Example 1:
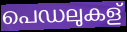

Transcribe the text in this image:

പെഡലുകള്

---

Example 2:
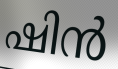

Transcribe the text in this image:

ഷിൻ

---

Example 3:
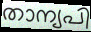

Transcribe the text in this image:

താന്യപി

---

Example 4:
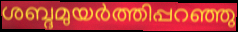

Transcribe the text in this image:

ശബ്ദമുയർത്തിപ്പറഞ്ഞു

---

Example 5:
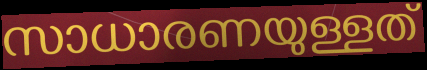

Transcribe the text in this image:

സാധാരണയുള്ളത്